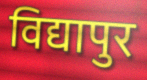
विद्यापुर